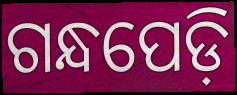
ଗନ୍ଧପେଡ଼ି